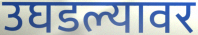
उघडल्यावर